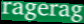
ragerag